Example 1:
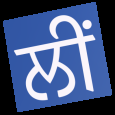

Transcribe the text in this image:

ਲੀਂ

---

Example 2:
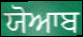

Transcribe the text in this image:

ਯੋਆਬ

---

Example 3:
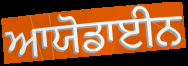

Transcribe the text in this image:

ਆਯੋਡਾਈਨ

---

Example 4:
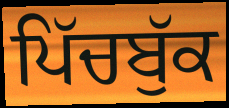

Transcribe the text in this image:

ਪਿੱਚਬੁੱਕ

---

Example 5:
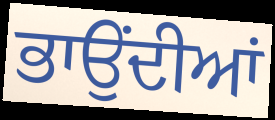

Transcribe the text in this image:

ਭਾਉਂਦੀਆਂ